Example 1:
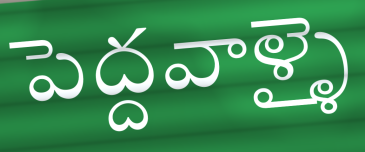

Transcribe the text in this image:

పెద్దవాళ్ళై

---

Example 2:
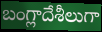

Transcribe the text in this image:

బంగ్లాదేశీలుగా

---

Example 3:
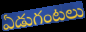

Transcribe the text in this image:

ఏడుగంటలు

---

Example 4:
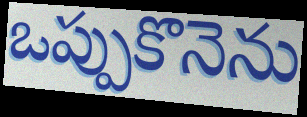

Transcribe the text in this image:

ఒప్పుకొనెను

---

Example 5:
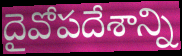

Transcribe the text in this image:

దైవోపదేశాన్ని